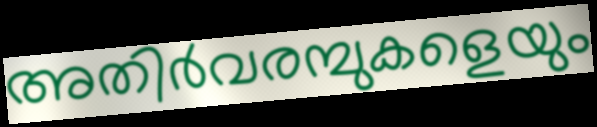
അതിർവരമ്പുകളെയും